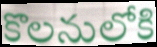
కొలనులోకి